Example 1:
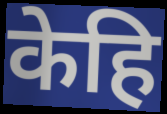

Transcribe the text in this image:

केहि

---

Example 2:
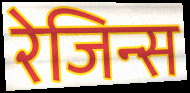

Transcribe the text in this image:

रेजिन्स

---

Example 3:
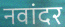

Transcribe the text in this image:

नवांदर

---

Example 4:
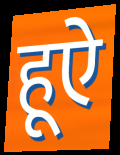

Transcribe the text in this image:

हूऐ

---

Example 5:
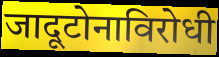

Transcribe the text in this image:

जादूटोनाविरोधी